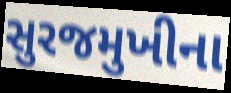
સુરજમુખીના